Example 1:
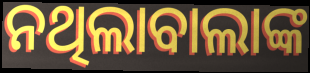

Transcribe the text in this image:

ନଥିଲାବାଲାଙ୍କ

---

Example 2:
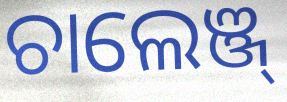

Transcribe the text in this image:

ଚାଲେଞ୍ଜ୍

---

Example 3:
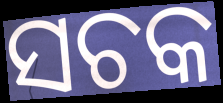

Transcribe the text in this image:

ସଚକ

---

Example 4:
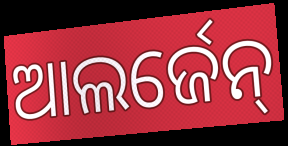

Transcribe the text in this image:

ଆଲର୍ଜେନ୍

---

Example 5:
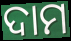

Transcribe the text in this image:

ଦାମ